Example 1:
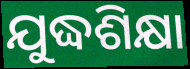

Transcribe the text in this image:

ଯୁଦ୍ଧଶିକ୍ଷା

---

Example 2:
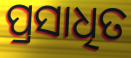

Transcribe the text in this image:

ପ୍ରସାଧିତ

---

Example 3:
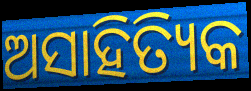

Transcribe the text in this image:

ଅସାହିତ୍ୟିକ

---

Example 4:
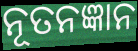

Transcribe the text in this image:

ନୂତନଜ୍ଞାନ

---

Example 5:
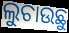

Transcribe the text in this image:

ଲୁଚାଉଛୁ